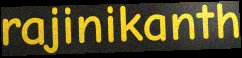
rajinikanth